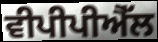
ਵੀਪੀਪੀਐੱਲ